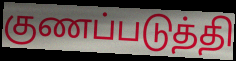
குணப்படுத்தி